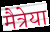
मैत्रेया